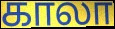
காலா